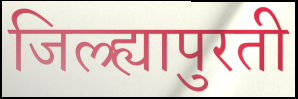
जिल्ह्यापुरती